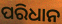
ପରିଧାନ